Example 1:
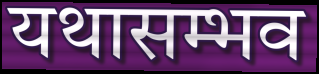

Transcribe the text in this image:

यथासम्भव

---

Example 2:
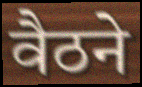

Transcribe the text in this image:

वैठने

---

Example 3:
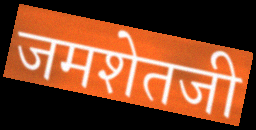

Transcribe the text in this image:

जमशेतजी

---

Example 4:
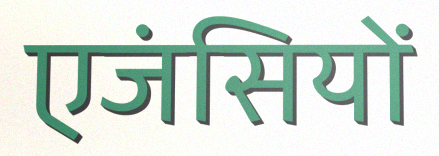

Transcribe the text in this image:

एजंसियों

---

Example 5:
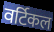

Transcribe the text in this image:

वर्टिकल